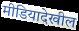
मीडियादेखील